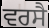
ਵਰਸੈ